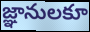
జ్ఞానులకూ